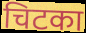
चिटका